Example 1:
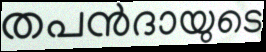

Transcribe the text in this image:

തപൻദായുടെ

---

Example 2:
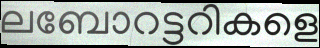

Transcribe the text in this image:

ലബോറട്ടറികളെ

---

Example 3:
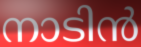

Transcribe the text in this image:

നാടിൻ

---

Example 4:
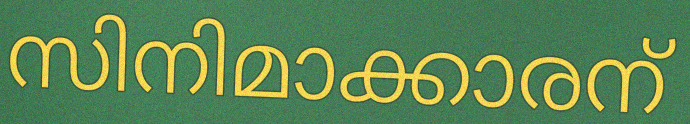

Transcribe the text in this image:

സിനിമാക്കാരന്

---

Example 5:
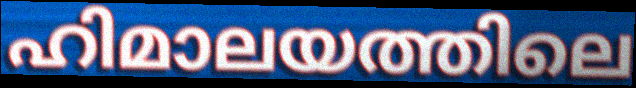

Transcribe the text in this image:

ഹിമാലയത്തിലെ